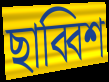
ছাব্বিশ